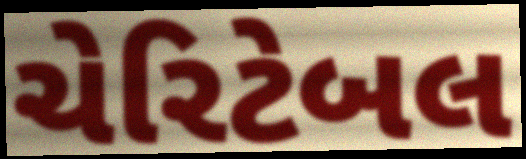
ચેરિટેબલ